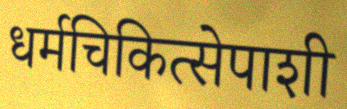
धर्मचिकित्सेपाशी